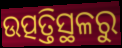
ଉତ୍ପତ୍ତିସ୍ଥଳରୁ